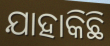
ଯାହାକିଛି